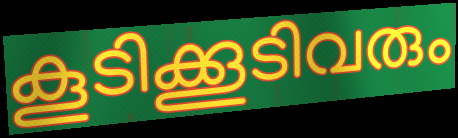
കൂടിക്കൂടിവരും